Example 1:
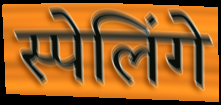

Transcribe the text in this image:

स्पेलिंगे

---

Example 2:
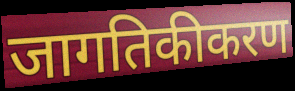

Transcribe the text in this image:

जागतिकीकरण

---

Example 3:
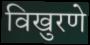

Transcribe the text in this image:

विखुरणे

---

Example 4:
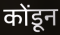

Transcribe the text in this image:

कोंडून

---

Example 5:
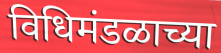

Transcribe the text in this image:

विधिमंडळाच्या